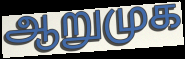
ஆறுமுக